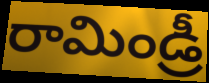
రామిండ్రీ